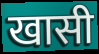
खासी